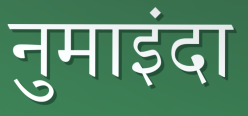
नुमाइंदा